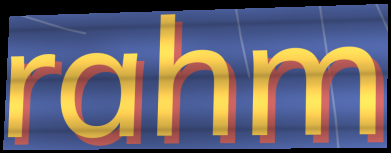
rahm